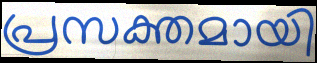
പ്രസക്തമായി